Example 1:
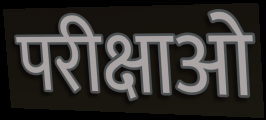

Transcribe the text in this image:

परीक्षाओ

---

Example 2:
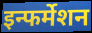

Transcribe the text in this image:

इन्फर्मेशन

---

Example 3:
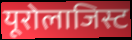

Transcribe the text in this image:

यूरोलाजिस्ट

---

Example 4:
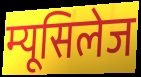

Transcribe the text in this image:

म्यूसिलेज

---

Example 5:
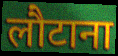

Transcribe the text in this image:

लौटाना